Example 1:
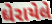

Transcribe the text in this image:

ઘેરાયેલે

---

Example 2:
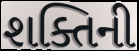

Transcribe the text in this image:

શક્તિની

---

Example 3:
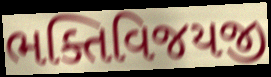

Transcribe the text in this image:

ભક્તિવિજયજી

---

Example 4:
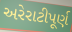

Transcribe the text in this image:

અરેરાટીપૂર્ણ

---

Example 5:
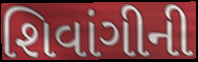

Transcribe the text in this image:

શિવાંગીની